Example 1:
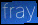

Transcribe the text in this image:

fray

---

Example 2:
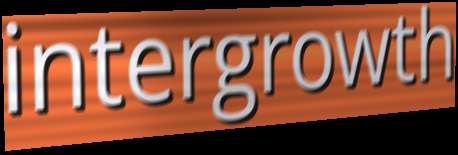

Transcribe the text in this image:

intergrowth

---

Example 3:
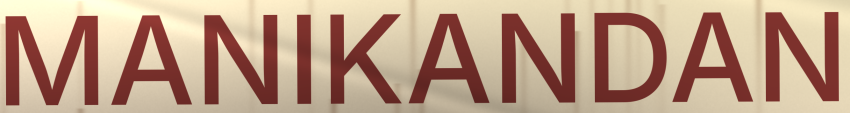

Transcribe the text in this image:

MANIKANDAN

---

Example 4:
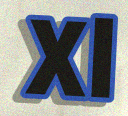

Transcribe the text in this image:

Xl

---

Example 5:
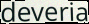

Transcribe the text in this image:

deveria